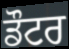
ਡੌਟਰ